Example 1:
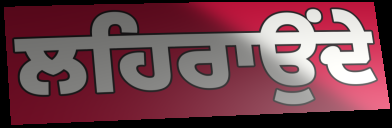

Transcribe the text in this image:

ਲਹਿਰਾਉਂਦੇ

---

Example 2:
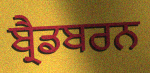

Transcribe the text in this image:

ਬ੍ਰੈਡਬਰਨ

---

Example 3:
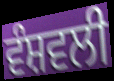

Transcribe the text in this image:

ਵੰਸ਼ਵਲੀ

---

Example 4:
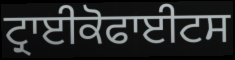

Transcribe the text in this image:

ਟ੍ਰਾਈਕੋਫਾਈਟਸ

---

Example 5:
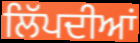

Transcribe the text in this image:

ਲਿੱਪਦੀਆਂ